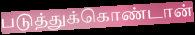
படுத்துக்கொண்டான்